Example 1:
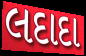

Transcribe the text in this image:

લદાદા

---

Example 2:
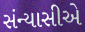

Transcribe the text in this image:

સંન્યાસીએ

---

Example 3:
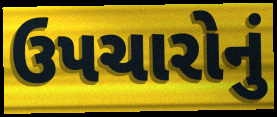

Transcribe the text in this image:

ઉપચારોનું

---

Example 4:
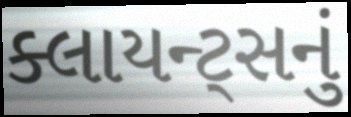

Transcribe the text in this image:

ક્લાયન્ટ્સનું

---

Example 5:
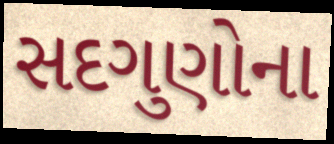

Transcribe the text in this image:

સદગુણોના